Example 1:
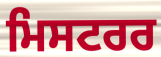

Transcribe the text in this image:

ਮਿਸਟਰਰ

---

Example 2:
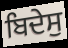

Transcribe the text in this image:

ਬਿਦੇਸੁ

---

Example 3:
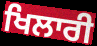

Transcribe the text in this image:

ਖਿਲਾਰੀ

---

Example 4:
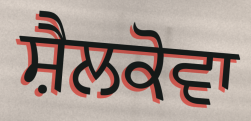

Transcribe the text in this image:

ਸ਼ੈਲਕੋਵਾ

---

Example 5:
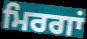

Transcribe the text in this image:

ਮਿਰਗਾਂ